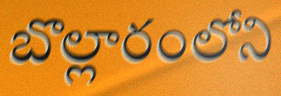
బొల్లారంలోని